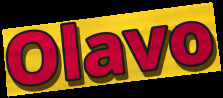
Olavo